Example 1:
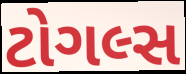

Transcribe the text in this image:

ટોગલ્સ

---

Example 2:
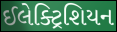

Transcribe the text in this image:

ઈલેક્ટ્રિશિયન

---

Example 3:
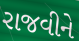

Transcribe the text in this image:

રાજવીને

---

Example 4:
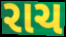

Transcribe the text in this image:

રાચ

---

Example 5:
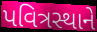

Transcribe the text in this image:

પવિત્રસ્થાને